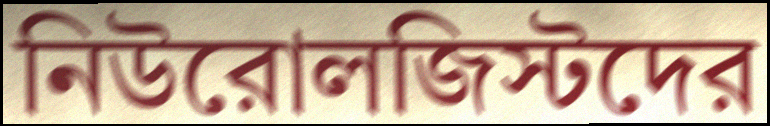
নিউরোলজিস্টদের